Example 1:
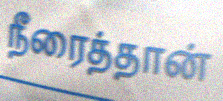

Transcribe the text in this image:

நீரைத்தான்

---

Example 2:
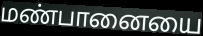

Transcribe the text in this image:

மண்பானையை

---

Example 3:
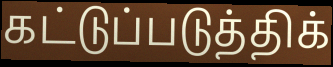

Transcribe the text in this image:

கட்டுப்படுத்திக்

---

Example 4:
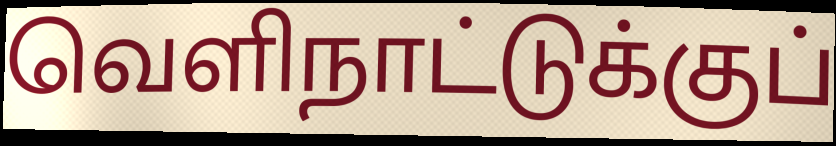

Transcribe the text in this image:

வெளிநாட்டுக்குப்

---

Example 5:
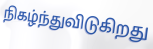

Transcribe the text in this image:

நிகழ்ந்துவிடுகிறது